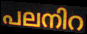
പലനിറ